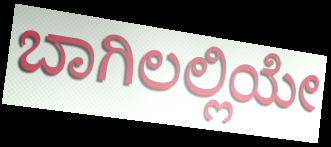
ಬಾಗಿಲಲ್ಲಿಯೇ